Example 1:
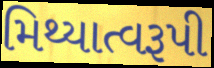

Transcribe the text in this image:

મિથ્યાત્વરૂપી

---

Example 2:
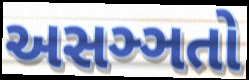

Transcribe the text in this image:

અસઞ્ઞતો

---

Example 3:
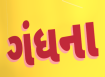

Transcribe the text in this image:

ગંધના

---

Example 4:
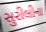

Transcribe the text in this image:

સુરીલીના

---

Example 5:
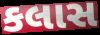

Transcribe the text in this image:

કલાસ